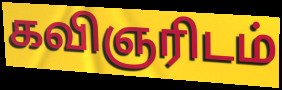
கவிஞரிடம்